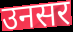
उनसर